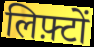
लिफ़्टों